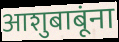
आशुबाबूंना